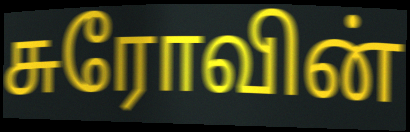
சுரோவின்